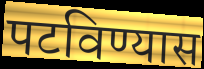
पटविण्यास